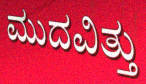
ಮುದವಿತ್ತು